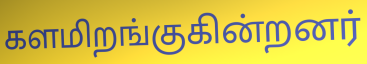
களமிறங்குகின்றனர்